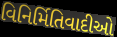
વિનિર્મિતિવાદીઓ